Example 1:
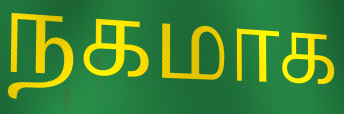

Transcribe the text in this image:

நகமாக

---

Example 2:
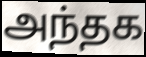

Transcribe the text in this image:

அந்தக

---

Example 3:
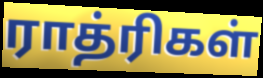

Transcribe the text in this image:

ராத்ரிகள்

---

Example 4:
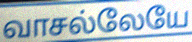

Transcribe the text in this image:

வாசல்லேயே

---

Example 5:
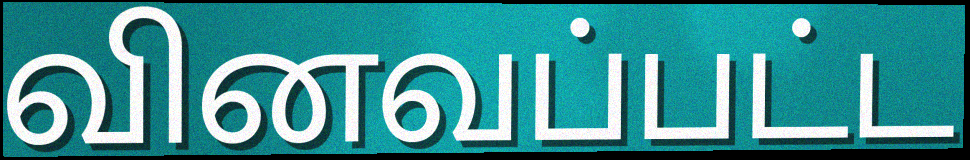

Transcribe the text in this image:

வினவப்பட்ட